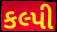
કલ્પી